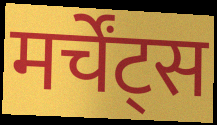
मर्चेंट्स